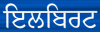
ਇਲਬਿਰਟ